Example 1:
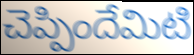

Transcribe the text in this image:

చెప్పిందేమిటి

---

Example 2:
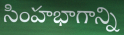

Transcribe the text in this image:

సింహభాగాన్ని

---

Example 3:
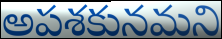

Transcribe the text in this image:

అపశకునమని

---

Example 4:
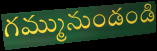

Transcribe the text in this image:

గమ్మునుండండి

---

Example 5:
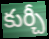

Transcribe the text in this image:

కుర్చీ